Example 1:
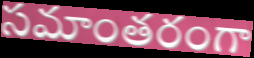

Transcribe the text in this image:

సమాంతరంగా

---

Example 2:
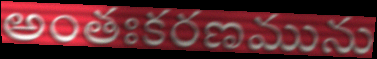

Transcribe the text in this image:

అంతఃకరణమును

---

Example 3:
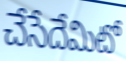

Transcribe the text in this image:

చేసేదేమిటో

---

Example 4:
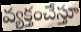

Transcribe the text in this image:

వ్యక్తంచేస్తూ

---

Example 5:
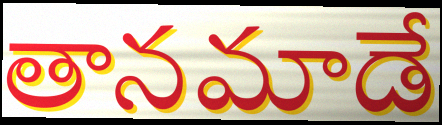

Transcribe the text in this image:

తానమాడే